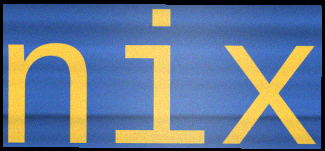
nix